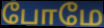
போமே